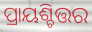
ପ୍ରାୟଶ୍ଚିତ୍ତର